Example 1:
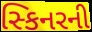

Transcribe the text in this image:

સ્કિનરની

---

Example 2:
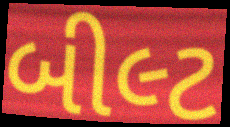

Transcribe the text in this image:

બીલ્ટ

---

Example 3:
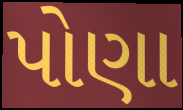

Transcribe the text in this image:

પોણા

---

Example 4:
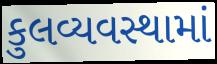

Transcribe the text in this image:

કુલવ્યવસ્થામાં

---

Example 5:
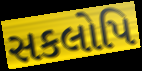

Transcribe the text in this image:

સકલોપિ